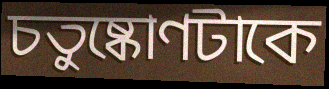
চতুষ্কোণটাকে